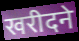
खरीदने